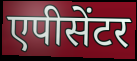
एपीसेंटर